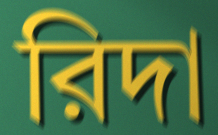
রিদা